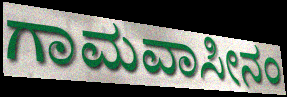
ಗಾಮವಾಸೀನಂ